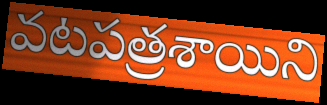
వటపత్రశాయిని